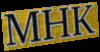
MHK